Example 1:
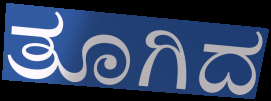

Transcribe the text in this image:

ತೂಗಿದ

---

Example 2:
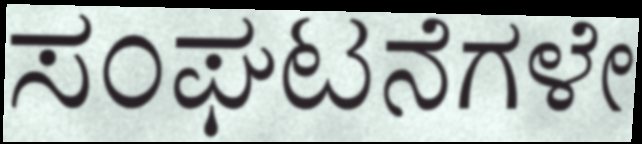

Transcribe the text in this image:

ಸಂಘಟನೆಗಳೇ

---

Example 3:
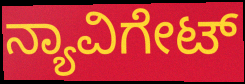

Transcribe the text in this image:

ನ್ಯಾವಿಗೇಟ್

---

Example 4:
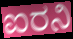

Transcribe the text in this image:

ಐರನಿ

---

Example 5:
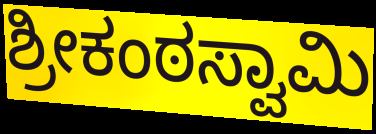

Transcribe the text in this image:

ಶ್ರೀಕಂಠಸ್ವಾಮಿ